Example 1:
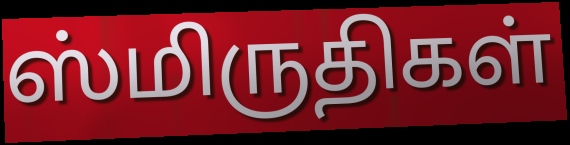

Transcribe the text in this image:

ஸ்மிருதிகள்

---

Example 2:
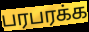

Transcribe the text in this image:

பரபரக்க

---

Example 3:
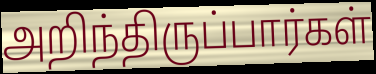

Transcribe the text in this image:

அறிந்திருப்பார்கள்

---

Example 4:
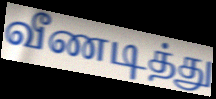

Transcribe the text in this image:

வீணடித்து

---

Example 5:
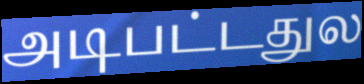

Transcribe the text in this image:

அடிபட்டதுல